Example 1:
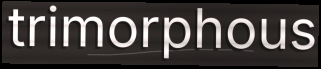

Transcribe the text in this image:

trimorphous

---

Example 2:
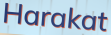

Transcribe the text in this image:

Harakat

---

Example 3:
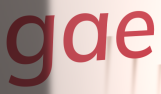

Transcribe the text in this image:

gae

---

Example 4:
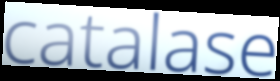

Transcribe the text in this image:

catalase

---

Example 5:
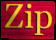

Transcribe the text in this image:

Zip